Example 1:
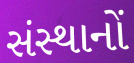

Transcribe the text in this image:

સંસ્થાનોં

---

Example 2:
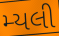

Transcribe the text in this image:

મ્યલી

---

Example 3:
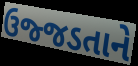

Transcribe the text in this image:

ઉજ્જડતાને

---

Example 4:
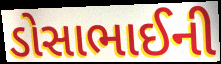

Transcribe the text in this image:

ડોસાભાઈની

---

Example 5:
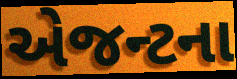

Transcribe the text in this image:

એજન્ટના